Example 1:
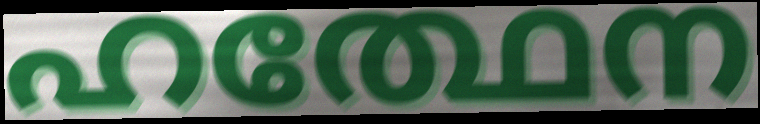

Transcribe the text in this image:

ഹത്ഥേന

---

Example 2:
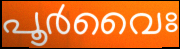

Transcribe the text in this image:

പൂർവൈഃ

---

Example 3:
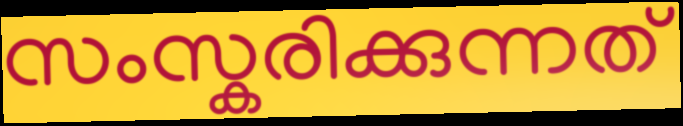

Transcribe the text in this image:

സംസ്കരിക്കുന്നത്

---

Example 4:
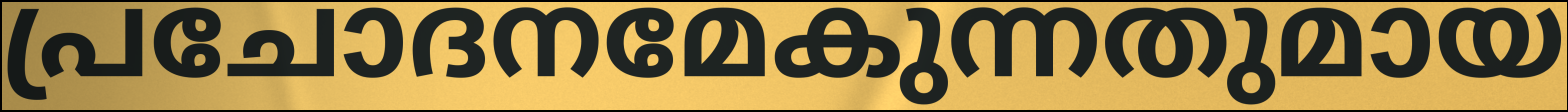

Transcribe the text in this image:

പ്രചോദനമേകുന്നതുമായ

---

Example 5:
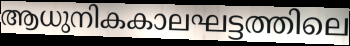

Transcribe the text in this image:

ആധുനികകാലഘട്ടത്തിലെ